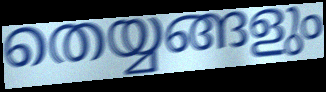
തെയ്യങ്ങളും